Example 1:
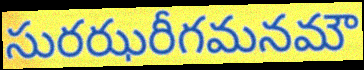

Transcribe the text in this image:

సురఝరీగమనమౌ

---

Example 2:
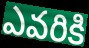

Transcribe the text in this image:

ఎవరికి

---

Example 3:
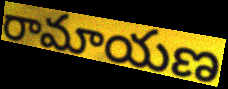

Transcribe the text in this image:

రామాయణ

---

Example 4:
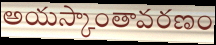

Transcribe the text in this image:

అయస్కాంతావరణం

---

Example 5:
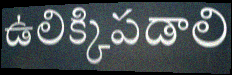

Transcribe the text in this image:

ఉలిక్కిపడాలి